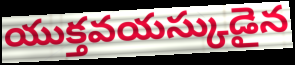
యుక్తవయస్కుడైన